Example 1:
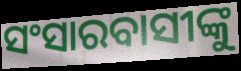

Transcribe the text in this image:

ସଂସାରବାସୀଙ୍କୁ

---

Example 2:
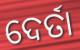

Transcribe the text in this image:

ଦେର୍ତା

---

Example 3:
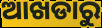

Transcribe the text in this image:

ଆଖଡାରୁ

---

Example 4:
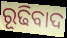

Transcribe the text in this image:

ରୂଢିବାଦ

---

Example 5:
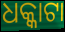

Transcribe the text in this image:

ଧକ୍କାଟା